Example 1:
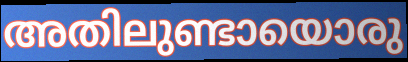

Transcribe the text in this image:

അതിലുണ്ടായൊരു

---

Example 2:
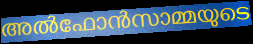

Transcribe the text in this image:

അൽഫോൻസാമ്മയുടെ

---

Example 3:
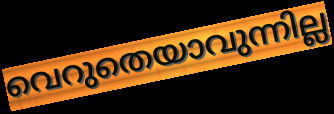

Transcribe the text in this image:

വെറുതെയാവുന്നില്ല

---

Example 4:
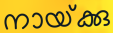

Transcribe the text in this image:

നായ്‌ക്കു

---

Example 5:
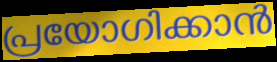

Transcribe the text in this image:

പ്രയോഗിക്കാൻ